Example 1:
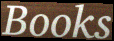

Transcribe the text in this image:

Books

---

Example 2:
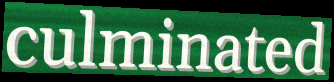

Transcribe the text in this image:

culminated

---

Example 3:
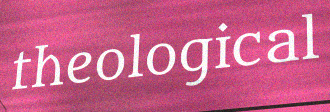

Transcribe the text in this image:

theological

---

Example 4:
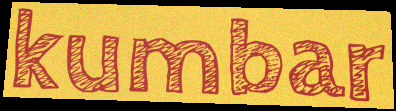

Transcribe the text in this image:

kumbar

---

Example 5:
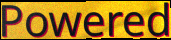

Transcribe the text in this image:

Powered